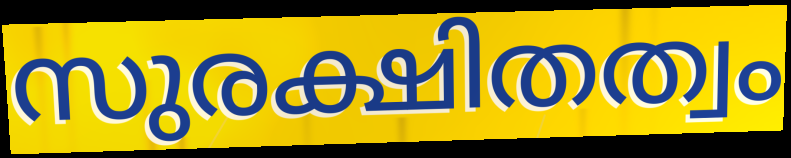
സുരക്ഷിതത്വം